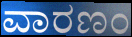
ವಾರಣಂ